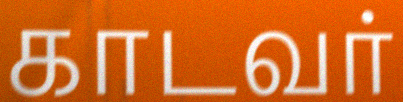
காடவர்